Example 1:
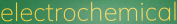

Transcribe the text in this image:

electrochemical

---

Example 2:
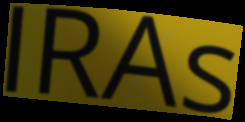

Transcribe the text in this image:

IRAs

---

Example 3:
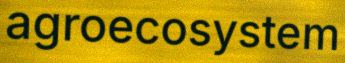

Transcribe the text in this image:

agroecosystem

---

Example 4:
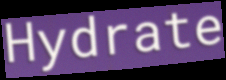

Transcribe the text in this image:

Hydrate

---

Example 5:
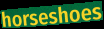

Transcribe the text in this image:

horseshoes